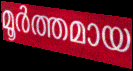
മൂർത്തമായ